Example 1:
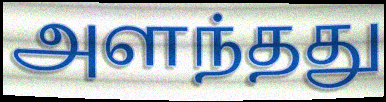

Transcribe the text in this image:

அளந்தது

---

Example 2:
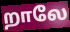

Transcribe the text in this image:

றாலே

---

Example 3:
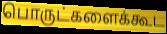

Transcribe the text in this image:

பொருட்களைக்கூட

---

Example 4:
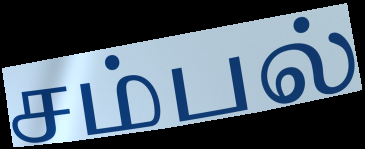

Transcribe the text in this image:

சம்பல்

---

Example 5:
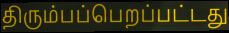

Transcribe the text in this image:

திரும்பப்பெறப்பட்டது